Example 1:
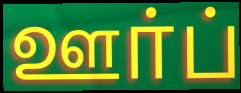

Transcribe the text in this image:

ஊர்ப்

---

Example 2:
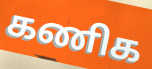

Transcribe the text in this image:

கணிக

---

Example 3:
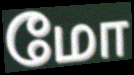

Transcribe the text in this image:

மோ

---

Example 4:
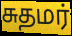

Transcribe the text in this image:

சுதமர்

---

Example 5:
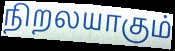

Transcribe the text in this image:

நிறலயாகும்